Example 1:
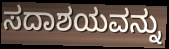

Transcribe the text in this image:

ಸದಾಶಯವನ್ನು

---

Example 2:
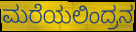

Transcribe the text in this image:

ಮರೆಯಲಿಂದ್ರನ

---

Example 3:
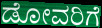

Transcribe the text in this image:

ಡೋವರಿಗೆ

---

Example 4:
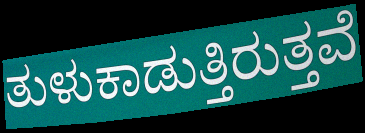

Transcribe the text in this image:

ತುಳುಕಾಡುತ್ತಿರುತ್ತವೆ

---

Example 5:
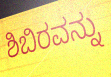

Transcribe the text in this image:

ಶಿಬಿರವನ್ನು